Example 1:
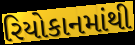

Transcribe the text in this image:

રિયોકાનમાંથી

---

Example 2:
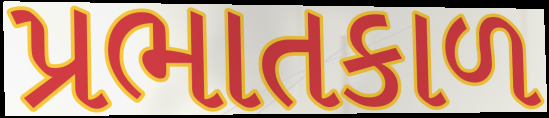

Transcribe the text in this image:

પ્રભાતકાળ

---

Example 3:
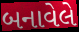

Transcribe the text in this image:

બનાવેલે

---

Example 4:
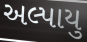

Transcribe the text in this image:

અલ્પાયુ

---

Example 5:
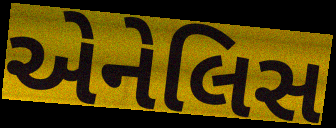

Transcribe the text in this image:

એનેલિસ